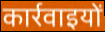
कार्रवाइयों